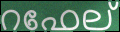
റഫേല്